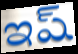
ఇష్